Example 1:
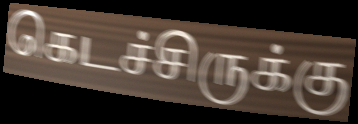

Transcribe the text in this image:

கெடச்சிருக்கு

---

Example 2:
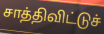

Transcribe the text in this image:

சாத்திவிட்டுச்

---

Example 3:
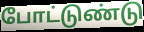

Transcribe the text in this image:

போட்டுண்டு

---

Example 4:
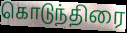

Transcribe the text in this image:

கொடுந்திரை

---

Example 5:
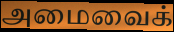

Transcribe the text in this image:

அமைவைக்